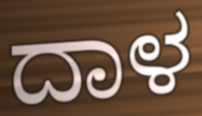
ದಾಳ